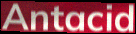
Antacid